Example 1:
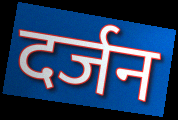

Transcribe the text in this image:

दर्जन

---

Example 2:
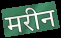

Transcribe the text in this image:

मरीन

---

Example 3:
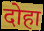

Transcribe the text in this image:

दोहा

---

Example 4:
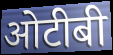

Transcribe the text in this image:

ओटीबी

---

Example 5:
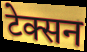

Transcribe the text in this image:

टेक्सन